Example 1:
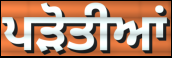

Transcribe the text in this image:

ਪੜੋਤੀਆਂ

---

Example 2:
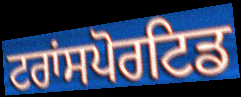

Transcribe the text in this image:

ਟਰਾਂਸਪੋਰਟਿਡ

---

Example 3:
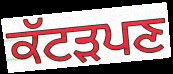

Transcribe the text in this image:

ਕੱਟੜਪਣ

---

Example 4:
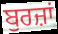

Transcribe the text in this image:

ਬੁਰਜ਼ਾਂ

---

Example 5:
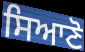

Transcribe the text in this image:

ਸਿਆਣੋ